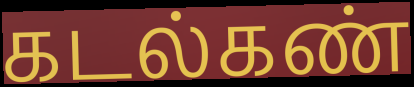
கடல்கண்